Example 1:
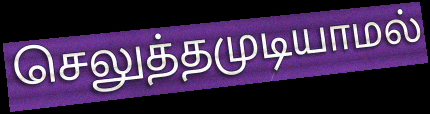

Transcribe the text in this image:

செலுத்தமுடியாமல்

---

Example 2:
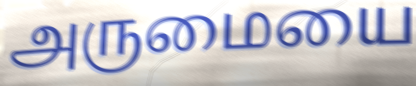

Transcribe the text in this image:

அருமையை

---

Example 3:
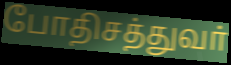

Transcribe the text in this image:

போதிசத்துவர்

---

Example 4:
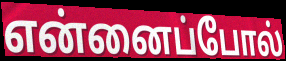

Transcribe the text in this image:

என்னைப்போல்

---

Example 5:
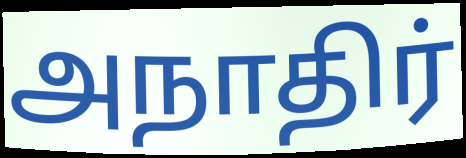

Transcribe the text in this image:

அநாதிர்